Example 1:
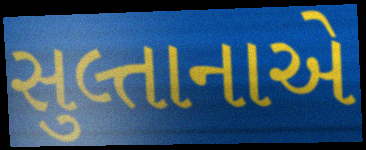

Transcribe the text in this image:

સુલ્તાનાએ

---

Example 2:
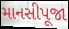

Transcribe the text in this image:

માનસીપૂજા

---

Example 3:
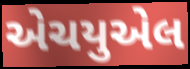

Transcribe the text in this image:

એચયુએલ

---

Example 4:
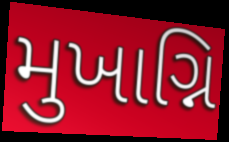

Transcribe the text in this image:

મુખાગ્નિ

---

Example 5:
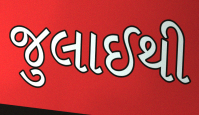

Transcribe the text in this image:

જુલાઈથી